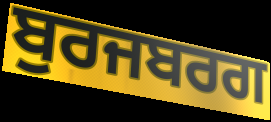
ਬੁਰਜਬਰਗ